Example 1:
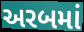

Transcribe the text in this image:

અરબમાં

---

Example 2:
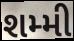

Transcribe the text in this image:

શમ્મી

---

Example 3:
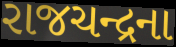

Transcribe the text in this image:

રાજચન્દ્રના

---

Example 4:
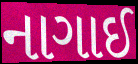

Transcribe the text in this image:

નાગાઈ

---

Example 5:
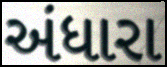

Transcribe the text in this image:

અંધારા